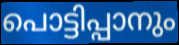
പൊട്ടിപ്പാനും